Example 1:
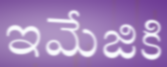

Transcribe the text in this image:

ఇమేజికి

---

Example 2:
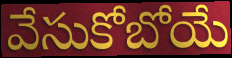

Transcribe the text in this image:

వేసుకోబోయే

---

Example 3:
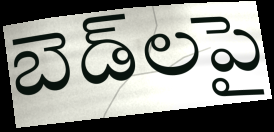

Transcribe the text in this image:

బెడ్‌లపై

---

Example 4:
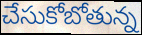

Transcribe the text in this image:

చేసుకోబోతున్న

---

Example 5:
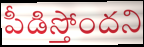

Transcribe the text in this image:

పీడిస్తోందని